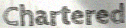
Chartered